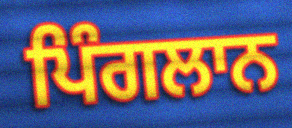
ਪਿੰਗਲਾਨ